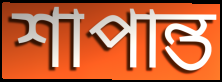
শাপান্ত